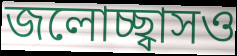
জলোচ্ছ্বাসও